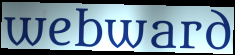
webward